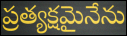
ప్రత్యక్షమైనేను